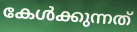
കേൾക്കുന്നത്